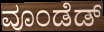
ವೂಂಡೆಡ್